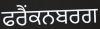
ਫਰੈਂਕਨਬਰਗ